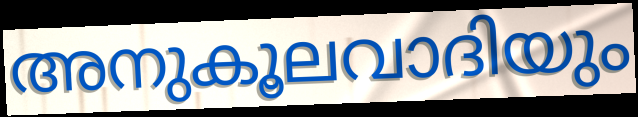
അനുകൂലവാദിയും